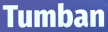
Tumban